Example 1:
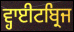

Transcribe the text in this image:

ਵ੍ਹਾਈਟਬ੍ਰਿਜ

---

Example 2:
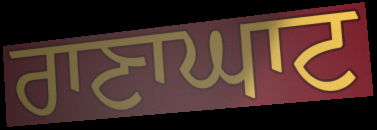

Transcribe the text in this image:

ਰਾਣਾਘਾਟ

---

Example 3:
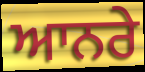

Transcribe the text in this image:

ਆਨਰੇ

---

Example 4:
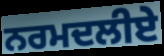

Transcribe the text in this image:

ਨਰਮਦਲੀਏ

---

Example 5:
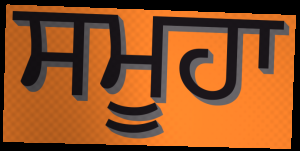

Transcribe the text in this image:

ਸਮੂਹਾ